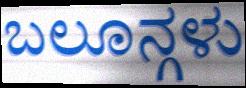
ಬಲೂನ್ಗಳು